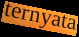
ternyata